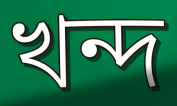
খন্দ